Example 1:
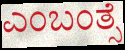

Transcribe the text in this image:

ಎಂಬಂತ್ಸೆ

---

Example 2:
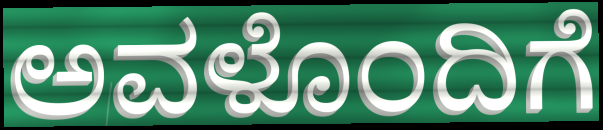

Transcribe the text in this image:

ಅವಳೊಂದಿಗೆ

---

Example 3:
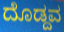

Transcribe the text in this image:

ದೊಡ್ದವ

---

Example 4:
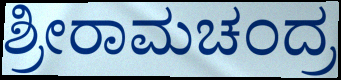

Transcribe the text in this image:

ಶ್ರೀರಾಮಚಂದ್ರ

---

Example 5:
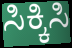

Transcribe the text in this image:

ಸಿಕ್ಕಿಸಿ